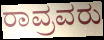
ರಾವ್ರವರು